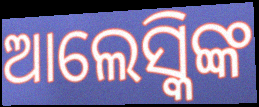
ଆଲେସ୍କିଙ୍କ